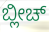
ಬ್ಲೀಚ್